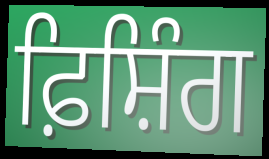
ਫ਼ਿਸ਼ਿੰਗ